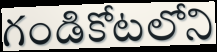
గండికోటలోని